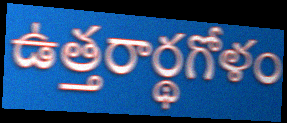
ఉత్తరార్థగోళం